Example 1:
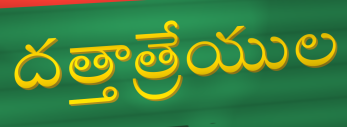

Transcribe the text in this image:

దత్తాత్రేయుల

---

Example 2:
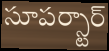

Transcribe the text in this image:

సూపర్స్టార్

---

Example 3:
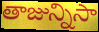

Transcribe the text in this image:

తాజున్నిసా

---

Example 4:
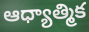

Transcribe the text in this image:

ఆధ్యాత్మిక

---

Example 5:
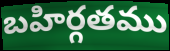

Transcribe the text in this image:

బహిర్గతము